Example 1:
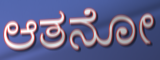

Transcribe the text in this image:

ಆತನೋ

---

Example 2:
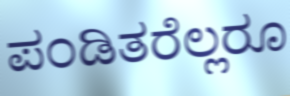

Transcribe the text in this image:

ಪಂಡಿತರೆಲ್ಲರೂ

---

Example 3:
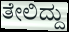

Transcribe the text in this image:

ತೇಲಿದ್ದು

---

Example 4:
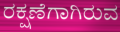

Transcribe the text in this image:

ರಕ್ಷಣೆಗಾಗಿರುವ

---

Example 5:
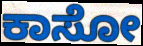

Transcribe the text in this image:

ಕಾಸೋ